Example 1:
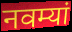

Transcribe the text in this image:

नवम्यां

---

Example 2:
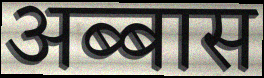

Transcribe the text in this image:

अब्बास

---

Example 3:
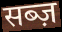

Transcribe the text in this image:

सब्ज़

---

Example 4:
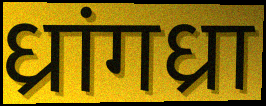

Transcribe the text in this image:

ध्रांगध्रा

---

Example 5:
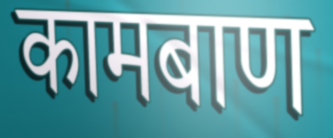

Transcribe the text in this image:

कामबाण